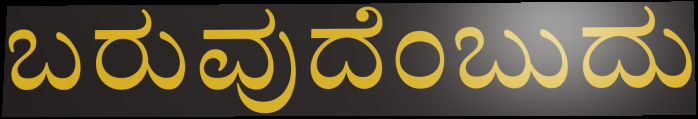
ಬರುವುದೆಂಬುದು